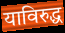
याविरुद्ध